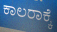
ಕಾಲರಾಕ್ಕೆ